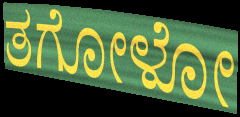
ತಗೋಳೋ